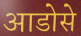
आडोसे